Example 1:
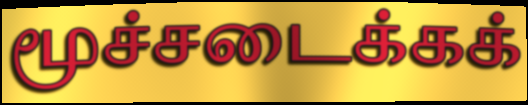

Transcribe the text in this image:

மூச்சடைக்கக்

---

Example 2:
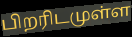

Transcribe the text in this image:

பிறரிடமுள்ள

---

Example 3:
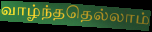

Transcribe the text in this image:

வாழ்ந்ததெல்லாம்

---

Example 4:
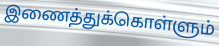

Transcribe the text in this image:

இணைத்துக்கொள்ளும்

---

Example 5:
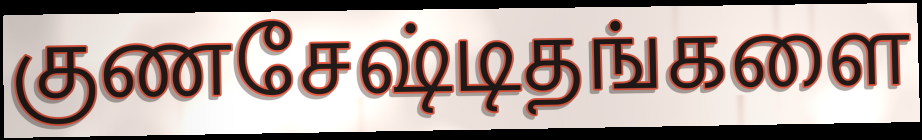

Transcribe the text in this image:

குணசேஷ்டிதங்களை